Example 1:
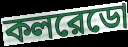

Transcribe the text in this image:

কলরেডো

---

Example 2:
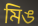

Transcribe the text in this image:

মিঙ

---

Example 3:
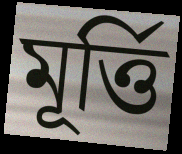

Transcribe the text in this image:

মূর্ত্তি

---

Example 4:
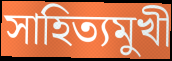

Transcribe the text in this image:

সাহিত্যমুখী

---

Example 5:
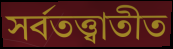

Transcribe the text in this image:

সর্বতত্ত্বাতীত